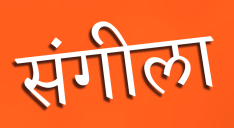
संगीला